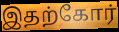
இதற்கோர்